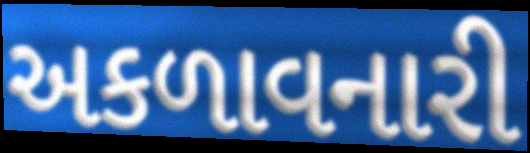
અકળાવનારી